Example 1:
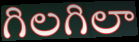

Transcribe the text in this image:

గిలగిలా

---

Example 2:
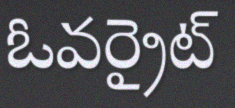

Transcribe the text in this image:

ఓవర్రైట్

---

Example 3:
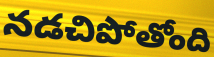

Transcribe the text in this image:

నడచిపోతోంది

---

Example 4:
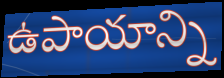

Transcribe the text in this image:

ఉపాయాన్ని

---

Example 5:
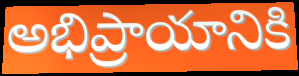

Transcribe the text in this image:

అభిప్రాయానికి